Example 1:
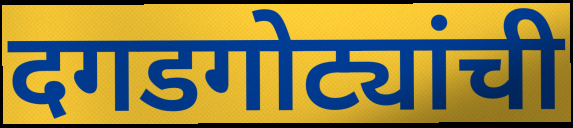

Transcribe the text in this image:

दगडगोट्यांची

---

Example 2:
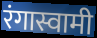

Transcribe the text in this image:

रंगास्वामी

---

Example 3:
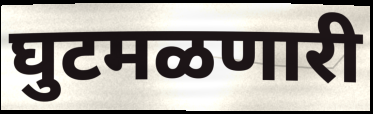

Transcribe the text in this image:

घुटमळणारी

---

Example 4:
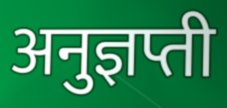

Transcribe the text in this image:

अनुज्ञप्ती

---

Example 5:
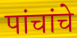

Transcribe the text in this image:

पांचांचे